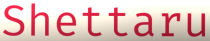
Shettaru